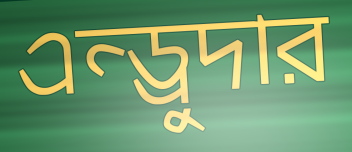
এন্ড্রুদার